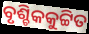
ବୃଶ୍ଚିକକୁଟ୍ଟିତ